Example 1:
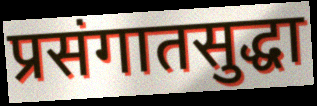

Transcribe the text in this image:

प्रसंगातसुद्धा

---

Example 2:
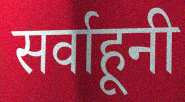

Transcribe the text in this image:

सर्वाहूनी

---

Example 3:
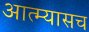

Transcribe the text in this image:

आत्म्यासच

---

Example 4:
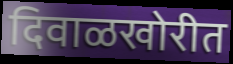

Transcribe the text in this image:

दिवाळखोरीत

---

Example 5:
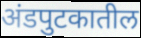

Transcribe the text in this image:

अंडपुटकातील